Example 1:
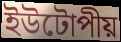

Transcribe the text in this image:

ইউটোপীয়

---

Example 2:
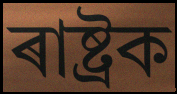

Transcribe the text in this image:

ৰাষ্ট্ৰক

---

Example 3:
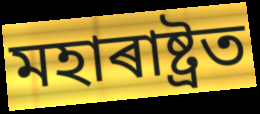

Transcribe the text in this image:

মহাৰাষ্ট্ৰত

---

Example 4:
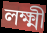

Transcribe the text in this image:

লক্ষ্মী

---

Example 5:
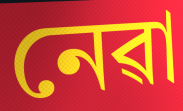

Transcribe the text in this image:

নেৱা